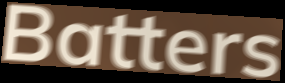
Batters